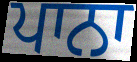
ਪਾਨਾ